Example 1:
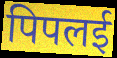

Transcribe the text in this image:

पिपलई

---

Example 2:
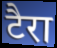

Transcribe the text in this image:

टैरा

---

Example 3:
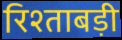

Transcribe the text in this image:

रिश्ताबड़ी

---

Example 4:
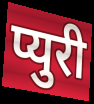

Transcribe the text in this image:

प्युरी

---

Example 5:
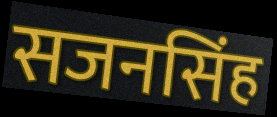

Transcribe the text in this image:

सजनसिंह